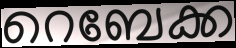
റെബേക്ക